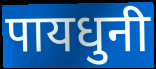
पायधुनी